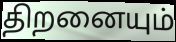
திறனையும்